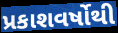
પ્રકાશવર્ષોથી